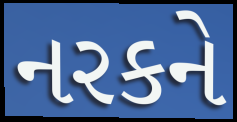
નરકને